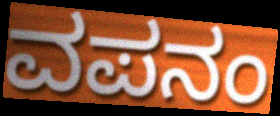
ವಪನಂ